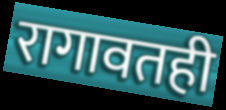
रागावतही